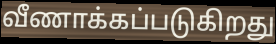
வீணாக்கப்படுகிறது